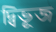
দ্বিভূজ